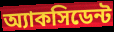
অ্যাকসিডেন্ট